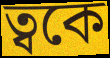
ত্বকে